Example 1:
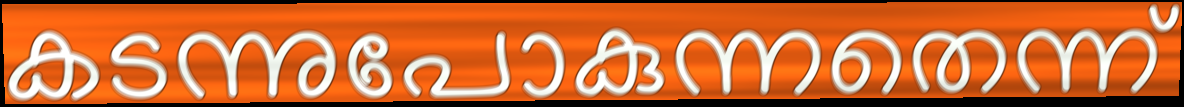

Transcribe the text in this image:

കടന്നുപോകുന്നതെന്ന്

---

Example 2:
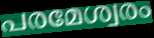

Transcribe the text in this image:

പരമേശ്വരം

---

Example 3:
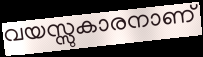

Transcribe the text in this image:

വയസ്സുകാരനാണ്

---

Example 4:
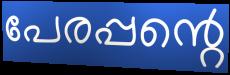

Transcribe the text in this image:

പേരപ്പന്റെ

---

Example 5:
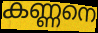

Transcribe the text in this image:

കണ്ണനെ